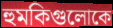
হুমকিগুলোকে